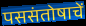
पससंतोषाचें